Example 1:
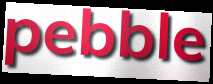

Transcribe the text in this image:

pebble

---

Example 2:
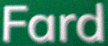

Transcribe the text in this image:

Fard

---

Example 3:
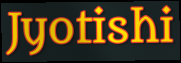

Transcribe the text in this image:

Jyotishi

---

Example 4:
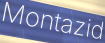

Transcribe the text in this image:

Montazid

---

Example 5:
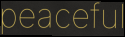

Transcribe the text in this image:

peaceful